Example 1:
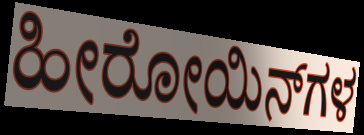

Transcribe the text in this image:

ಹೀರೋಯಿನ್‌ಗಳ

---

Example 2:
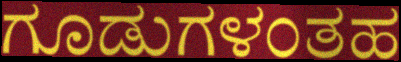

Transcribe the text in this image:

ಗೂಡುಗಳಂತಹ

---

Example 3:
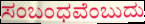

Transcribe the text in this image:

ಸಂಬಂಧವೆಂಬುದು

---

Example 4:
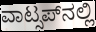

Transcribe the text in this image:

ವಾಟ್ಸಪ್‍ನಲ್ಲಿ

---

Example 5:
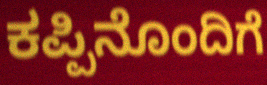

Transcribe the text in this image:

ಕಪ್ಪಿನೊಂದಿಗೆ